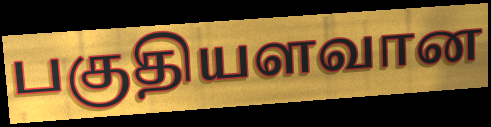
பகுதியளவான